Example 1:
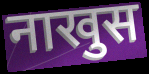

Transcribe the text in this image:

नाखुस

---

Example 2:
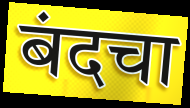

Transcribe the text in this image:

बंदचा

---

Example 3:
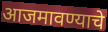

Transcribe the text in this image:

आजमावण्याचे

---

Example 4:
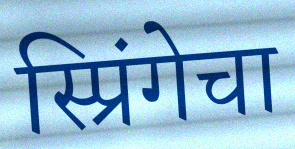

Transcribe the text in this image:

स्प्रिंगेचा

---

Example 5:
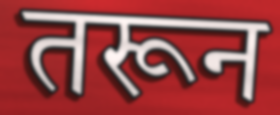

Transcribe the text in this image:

तरून